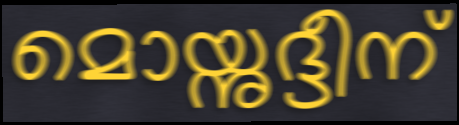
മൊയ്നുദ്ദീന്